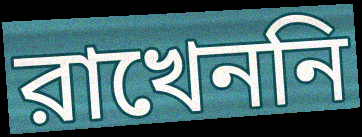
রাখেননি